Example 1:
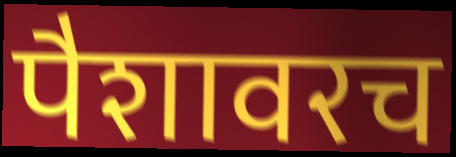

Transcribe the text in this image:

पैशावरच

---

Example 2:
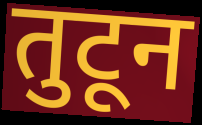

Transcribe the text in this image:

तुटून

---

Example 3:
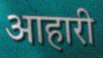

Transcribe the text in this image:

आहारी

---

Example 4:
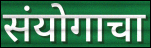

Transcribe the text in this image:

संयोगाचा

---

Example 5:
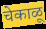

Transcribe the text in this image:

चेकाळू